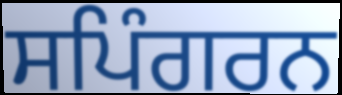
ਸਪਿੰਗਰਨ